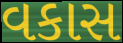
વકાસ